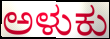
ಅಳುಕು